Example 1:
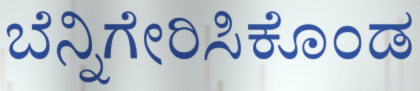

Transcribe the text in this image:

ಬೆನ್ನಿಗೇರಿಸಿಕೊಂಡ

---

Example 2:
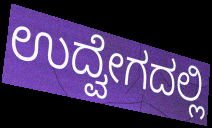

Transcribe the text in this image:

ಉದ್ವೇಗದಲ್ಲಿ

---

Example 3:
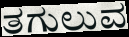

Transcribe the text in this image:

ತಗುಲುವ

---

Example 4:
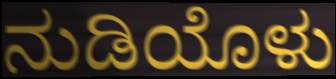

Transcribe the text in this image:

ನುಡಿಯೊಳು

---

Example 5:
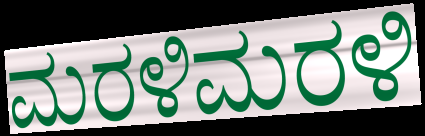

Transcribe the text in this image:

ಮರಳಿಮರಳಿ